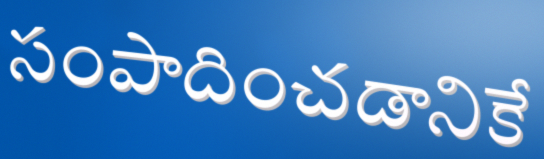
సంపాదించడానికే